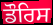
ਡੌਰਿਸ